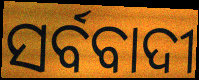
ସର୍ବବାଦୀ